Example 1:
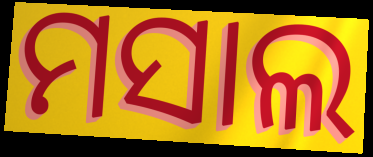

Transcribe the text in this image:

ମସାଲ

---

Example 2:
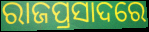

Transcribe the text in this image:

ରାଜପ୍ରସାଦରେ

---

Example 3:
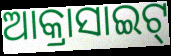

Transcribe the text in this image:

ଆକ୍ରାସାଇଟ୍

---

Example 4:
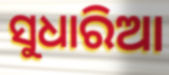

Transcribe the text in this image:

ସୁଧାରିଆ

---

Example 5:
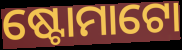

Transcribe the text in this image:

ଷ୍ଟୋମାଟୋ